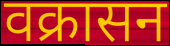
वक्रासन